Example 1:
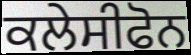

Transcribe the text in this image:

ਕਲੇਸੀਫੋਨ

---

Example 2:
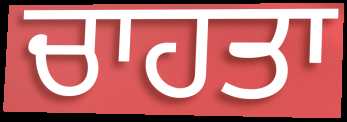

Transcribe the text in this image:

ਚਾਹਤਾ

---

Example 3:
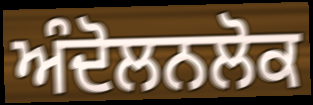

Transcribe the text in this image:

ਅੰਦੋਲਨਲੋਕ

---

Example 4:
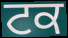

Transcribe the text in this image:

ਟਕ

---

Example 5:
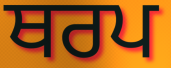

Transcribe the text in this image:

ਥਰਪ